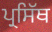
ਪ੍ਰਸਿੱਥ